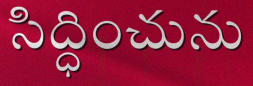
సిద్ధించును